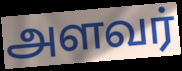
அளவர்